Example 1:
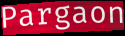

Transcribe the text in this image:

Pargaon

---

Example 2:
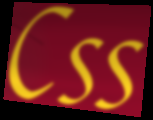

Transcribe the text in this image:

Css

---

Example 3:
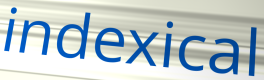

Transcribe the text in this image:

indexical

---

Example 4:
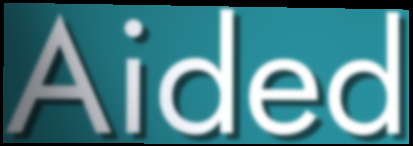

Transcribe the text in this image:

Aided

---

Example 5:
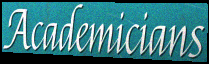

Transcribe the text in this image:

Academicians